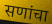
सणांचा